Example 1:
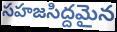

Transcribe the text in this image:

సహజసిద్దమైన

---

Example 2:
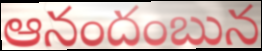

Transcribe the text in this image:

ఆనందంబున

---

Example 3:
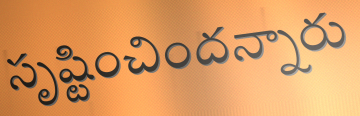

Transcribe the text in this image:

సృష్టించిందన్నారు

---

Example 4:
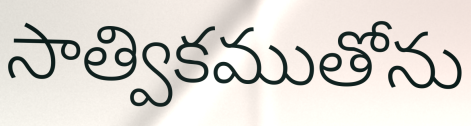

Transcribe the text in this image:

సాత్వికముతోను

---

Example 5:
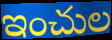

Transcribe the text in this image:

ఇంచుల